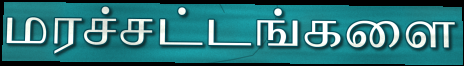
மரச்சட்டங்களை